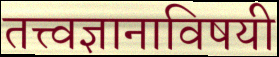
तत्त्वज्ञानाविषयी